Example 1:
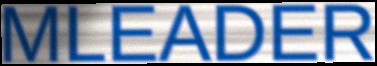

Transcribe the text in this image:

MLEADER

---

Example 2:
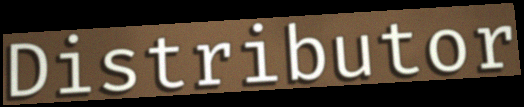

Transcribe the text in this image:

Distributor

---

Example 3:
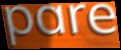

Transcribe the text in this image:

pare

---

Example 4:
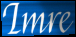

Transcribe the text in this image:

Imre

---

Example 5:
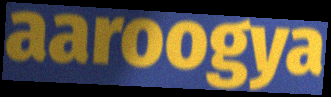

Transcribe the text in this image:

aaroogya